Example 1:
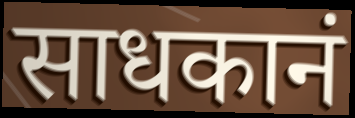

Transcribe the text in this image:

साधकानं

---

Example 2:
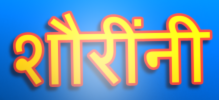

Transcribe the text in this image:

शौरींनी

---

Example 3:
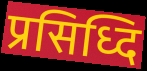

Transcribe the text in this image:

प्रसिध्दि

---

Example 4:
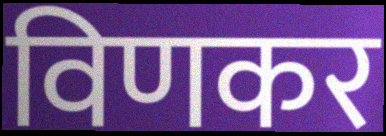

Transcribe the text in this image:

विणकर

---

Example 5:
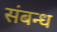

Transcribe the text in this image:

संबन्ध